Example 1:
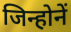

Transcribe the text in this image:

जिन्होनें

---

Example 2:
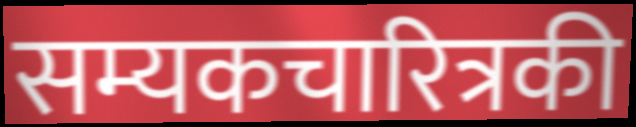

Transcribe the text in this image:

सम्यकचारित्रकी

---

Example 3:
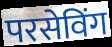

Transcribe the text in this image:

परसेविंग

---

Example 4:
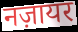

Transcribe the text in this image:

नज़ायर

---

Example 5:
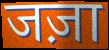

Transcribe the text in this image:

जज़ा